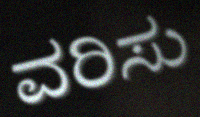
ವರಿಸು